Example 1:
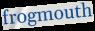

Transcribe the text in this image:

frogmouth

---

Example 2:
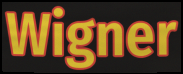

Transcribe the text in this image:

Wigner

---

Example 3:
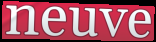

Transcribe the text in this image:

neuve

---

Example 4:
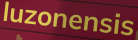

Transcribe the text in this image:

luzonensis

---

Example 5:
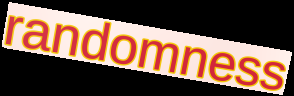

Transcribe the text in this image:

randomness